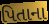
પિતાના